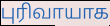
புரிவாயாக